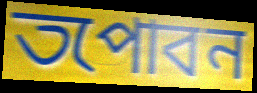
তপোবন